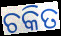
ଚକିତ